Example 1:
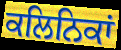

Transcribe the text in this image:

ਕਲਿਨਿਕਾਂ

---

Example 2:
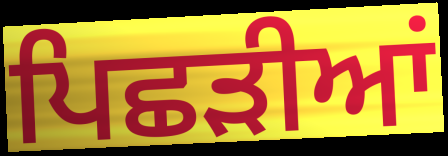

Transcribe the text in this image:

ਪਿਛੜੀਆਂ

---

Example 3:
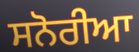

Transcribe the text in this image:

ਸਨੋਰੀਆ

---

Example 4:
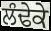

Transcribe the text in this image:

ਲੰਢੇਕੇ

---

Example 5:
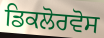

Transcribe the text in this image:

ਡਿਕਲੋਰਵੋਸ